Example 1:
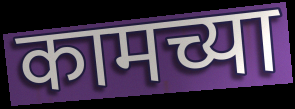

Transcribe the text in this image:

कामच्या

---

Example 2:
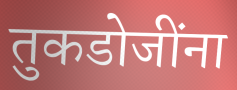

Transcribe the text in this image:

तुकडोजींना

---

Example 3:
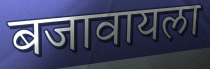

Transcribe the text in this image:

बजावायला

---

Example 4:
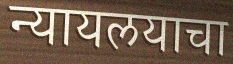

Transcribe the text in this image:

न्यायलयाचा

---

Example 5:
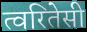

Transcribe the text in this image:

त्वरितेसी